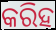
କରିହ